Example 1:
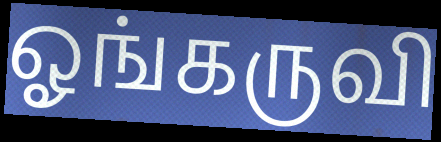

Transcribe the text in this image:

ஓங்கருவி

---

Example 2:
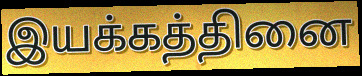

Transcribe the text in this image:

இயக்கத்தினை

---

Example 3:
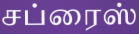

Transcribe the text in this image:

சப்ரைஸ்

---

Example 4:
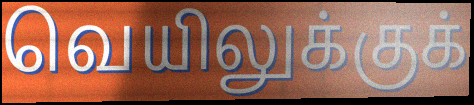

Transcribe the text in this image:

வெயிலுக்குக்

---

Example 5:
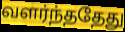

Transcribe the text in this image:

வளர்ந்ததேது